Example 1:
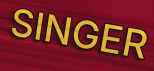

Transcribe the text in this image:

SINGER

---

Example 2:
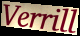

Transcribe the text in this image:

Verrill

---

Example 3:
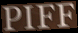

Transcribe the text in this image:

PIFF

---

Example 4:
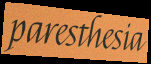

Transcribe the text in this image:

paresthesia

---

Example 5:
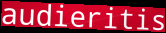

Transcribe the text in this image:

audieritis